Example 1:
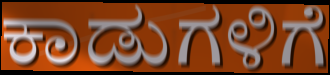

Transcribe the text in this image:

ಕಾಡುಗಳಿಗೆ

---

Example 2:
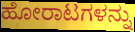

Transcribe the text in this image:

ಹೋರಾಟಗಳನ್ನು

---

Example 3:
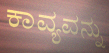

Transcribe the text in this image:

ಕಾವ್ಯವನ್ನು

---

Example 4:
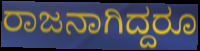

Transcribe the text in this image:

ರಾಜನಾಗಿದ್ದರೂ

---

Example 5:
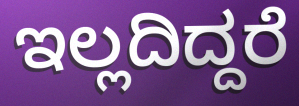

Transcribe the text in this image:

ಇಲ್ಲದಿದ್ದರೆ